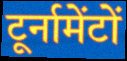
टूर्नामेंटों